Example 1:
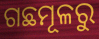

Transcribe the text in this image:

ଗଛମୂଳରୁ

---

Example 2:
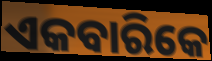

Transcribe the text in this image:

ଏକବାରିକେ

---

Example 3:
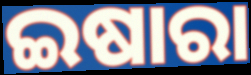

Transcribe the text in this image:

ଇଷାରା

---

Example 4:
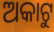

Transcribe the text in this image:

ଅକାଟୁ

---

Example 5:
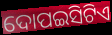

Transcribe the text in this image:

ଦୋପଇସିଟିଏ